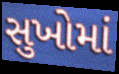
સુખોમાં